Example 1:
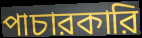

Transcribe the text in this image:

পাচারকারি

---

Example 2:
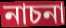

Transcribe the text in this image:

নাচনা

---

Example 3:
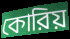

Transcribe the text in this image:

কোরিয়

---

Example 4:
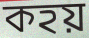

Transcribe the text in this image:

কহয়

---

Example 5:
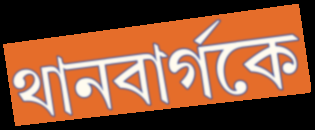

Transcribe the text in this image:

থানবার্গকে